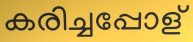
കരിച്ചപ്പോള്